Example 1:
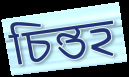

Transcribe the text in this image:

চিন্তহ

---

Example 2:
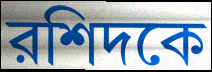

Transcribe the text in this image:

রশিদকে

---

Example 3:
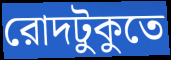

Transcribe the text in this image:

রোদটুকুতে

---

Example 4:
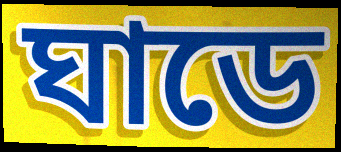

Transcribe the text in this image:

ঘাডে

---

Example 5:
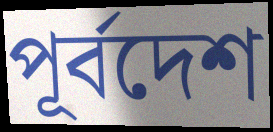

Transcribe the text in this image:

পূর্বদেশ